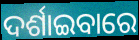
ଦର୍ଶାଇବାରେ